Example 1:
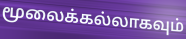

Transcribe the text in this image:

மூலைக்கல்லாகவும்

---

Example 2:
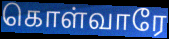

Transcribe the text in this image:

கொள்வாரே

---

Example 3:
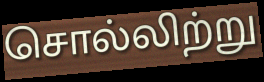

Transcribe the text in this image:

சொல்லிற்று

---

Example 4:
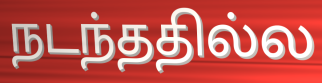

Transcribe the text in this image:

நடந்ததில்ல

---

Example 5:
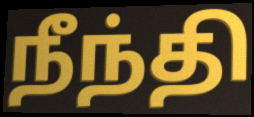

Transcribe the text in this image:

நீந்தி